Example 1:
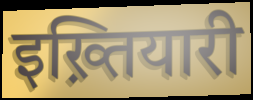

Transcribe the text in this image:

इख़्तियारी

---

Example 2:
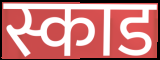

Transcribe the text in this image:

स्काड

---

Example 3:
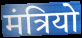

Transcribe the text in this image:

मंत्रियो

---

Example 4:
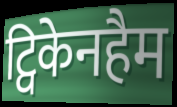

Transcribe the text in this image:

ट्विकेनहैम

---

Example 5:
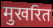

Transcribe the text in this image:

मुखरित